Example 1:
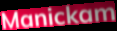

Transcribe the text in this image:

Manickam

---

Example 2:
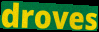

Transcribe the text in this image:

droves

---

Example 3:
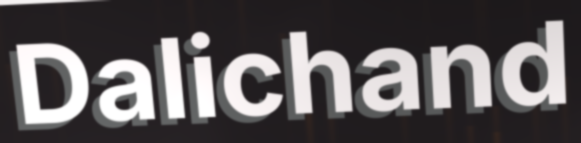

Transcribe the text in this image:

Dalichand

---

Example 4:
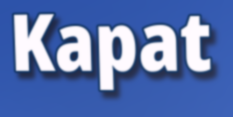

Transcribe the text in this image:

Kapat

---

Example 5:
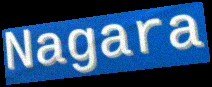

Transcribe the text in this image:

Nagara